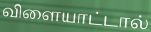
விளையாட்டால்